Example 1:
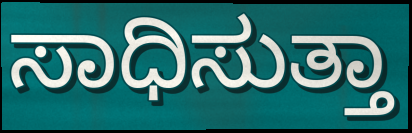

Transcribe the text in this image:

ಸಾಧಿಸುತ್ತಾ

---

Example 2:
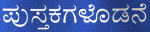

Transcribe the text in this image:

ಪುಸ್ತಕಗಳೊಡನೆ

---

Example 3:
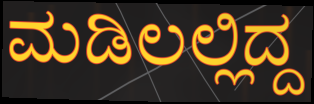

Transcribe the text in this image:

ಮಡಿಲಲ್ಲಿದ್ದ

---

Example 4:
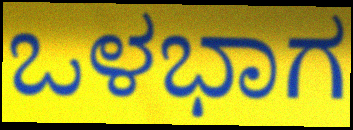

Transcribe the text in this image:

ಒಳಭಾಗ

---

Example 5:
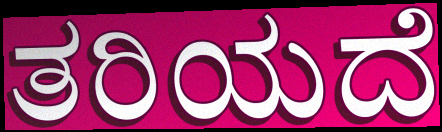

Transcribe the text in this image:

ತರಿಯದೆ